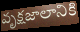
వృక్షజాలానికి